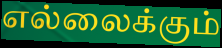
எல்லைக்கும்